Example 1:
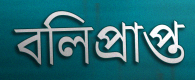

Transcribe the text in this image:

বলিপ্রাপ্ত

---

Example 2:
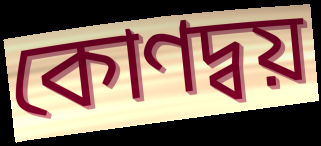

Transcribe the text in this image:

কোণদ্বয়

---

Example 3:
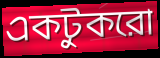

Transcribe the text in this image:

একটুকরো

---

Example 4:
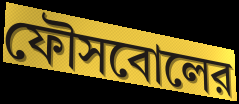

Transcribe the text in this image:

ফৌসবোলের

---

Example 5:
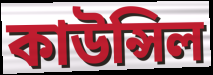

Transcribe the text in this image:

কাউন্সিল